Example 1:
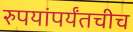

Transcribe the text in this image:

रुपयांपर्यंतचीच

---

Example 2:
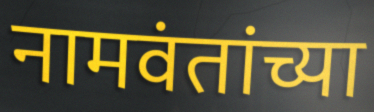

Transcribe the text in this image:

नामवंतांच्या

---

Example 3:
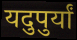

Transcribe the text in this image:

यदुपुर्यां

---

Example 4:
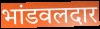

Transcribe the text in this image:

भांडवलदार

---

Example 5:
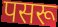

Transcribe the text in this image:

पसरू